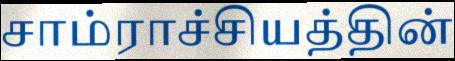
சாம்ராச்சியத்தின்